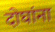
दोघांना